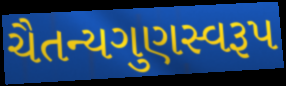
ચૈતન્યગુણસ્વરૂપ